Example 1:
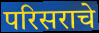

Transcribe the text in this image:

परिसराचे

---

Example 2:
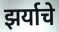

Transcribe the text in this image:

झर्याचे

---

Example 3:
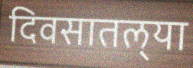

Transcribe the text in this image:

दिवसातल्या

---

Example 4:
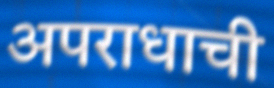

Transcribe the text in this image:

अपराधाची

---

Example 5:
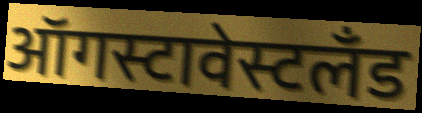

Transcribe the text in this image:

ऑगस्टावेस्टलँड